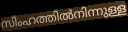
സിംഹത്തിൽനിന്നുള്ള